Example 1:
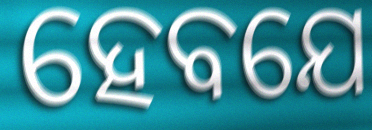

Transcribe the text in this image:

ହେବଯେ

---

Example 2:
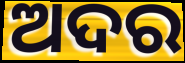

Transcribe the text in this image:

ଅଦର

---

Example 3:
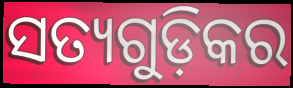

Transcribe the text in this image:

ସତ୍ୟଗୁଡ଼ିକର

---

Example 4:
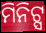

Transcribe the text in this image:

ମିନିଟ୍ସ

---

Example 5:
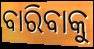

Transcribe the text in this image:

ବାରିବାକୁ